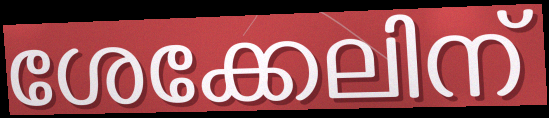
ശേക്കേലിന്